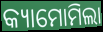
କ୍ୟାମୋମିଲା